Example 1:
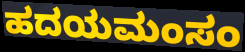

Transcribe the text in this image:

ಹದಯಮಂಸಂ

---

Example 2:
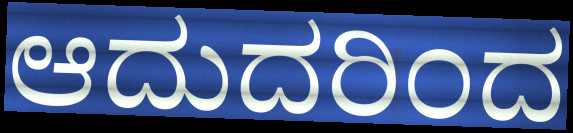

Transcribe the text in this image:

ಆದುದರಿಂದ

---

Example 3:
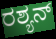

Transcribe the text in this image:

ರಶ್ಯನ್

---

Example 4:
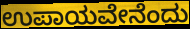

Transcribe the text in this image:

ಉಪಾಯವೇನೆಂದು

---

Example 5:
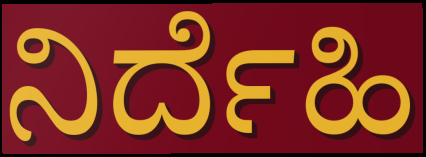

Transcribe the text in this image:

ನಿರ್ದೆಹಿ